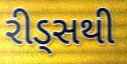
રીડ્સથી